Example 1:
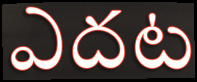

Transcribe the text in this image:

ఎదట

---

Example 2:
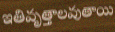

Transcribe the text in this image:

ఇతివృత్తాలవుతాయి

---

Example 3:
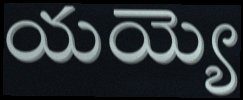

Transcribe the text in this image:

యయ్యె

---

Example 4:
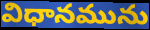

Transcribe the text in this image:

విధానమును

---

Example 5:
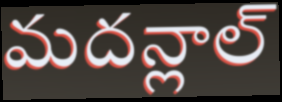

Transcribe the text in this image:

మదన్లాల్